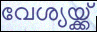
വേശ്യയ്ക്ക്